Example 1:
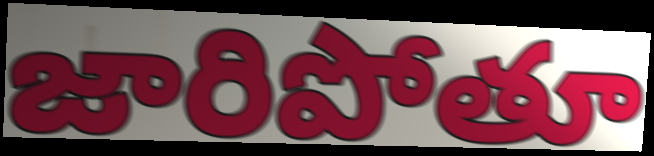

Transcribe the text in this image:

జారిపోతూ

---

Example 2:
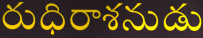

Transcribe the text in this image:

రుధిరాశనుడు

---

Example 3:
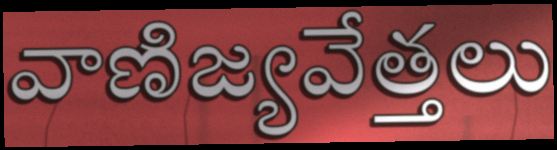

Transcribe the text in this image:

వాణిజ్యవేత్తలు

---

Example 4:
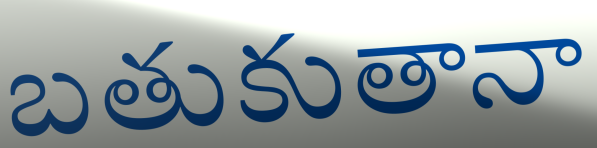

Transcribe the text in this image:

బతుకుతానా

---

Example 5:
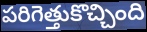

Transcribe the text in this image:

పరిగెత్తుకొచ్చింది